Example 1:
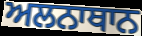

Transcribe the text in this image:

ਅਲਨਾਥਾਨ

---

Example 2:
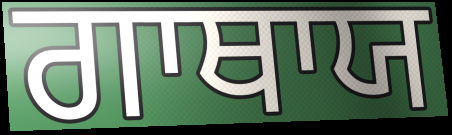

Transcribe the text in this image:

ਗਾਥਾਯ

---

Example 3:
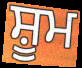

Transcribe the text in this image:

ਸ਼ੂਮ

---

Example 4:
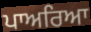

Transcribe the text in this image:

ਪਾਅਰਿਆ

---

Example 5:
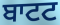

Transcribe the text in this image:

ਬਾਟਟ